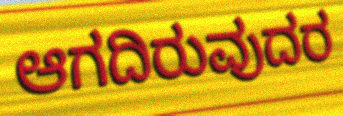
ಆಗದಿರುವುದರ